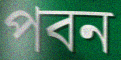
পবন